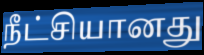
நீட்சியானது